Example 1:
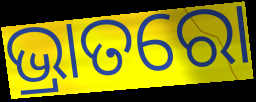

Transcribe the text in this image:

ଭ୍ରାତରୋ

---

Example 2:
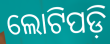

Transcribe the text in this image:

ଲୋଟିପଡ଼ି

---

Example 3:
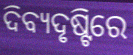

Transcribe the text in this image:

ଦିବ୍ୟଦୃଷ୍ଟିରେ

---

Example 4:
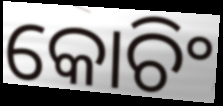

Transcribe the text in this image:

କୋଚିଂ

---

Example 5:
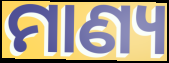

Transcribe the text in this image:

ମାଣ୍ୟ